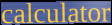
calculator